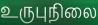
உருபுநிலை